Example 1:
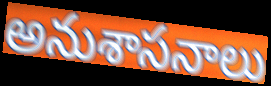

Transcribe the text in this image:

అనుశాసనాలు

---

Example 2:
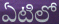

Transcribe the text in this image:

ఏటిలో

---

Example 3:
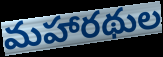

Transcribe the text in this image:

మహారథుల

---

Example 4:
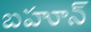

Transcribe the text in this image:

బహూన్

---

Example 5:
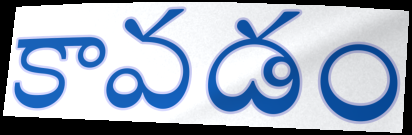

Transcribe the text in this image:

కావడం